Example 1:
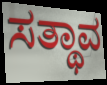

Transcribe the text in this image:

ಸತ್ಥಾವ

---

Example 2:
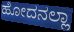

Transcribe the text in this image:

ಹೋದನಲ್ಲಾ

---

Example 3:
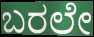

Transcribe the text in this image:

ಬರಲೇ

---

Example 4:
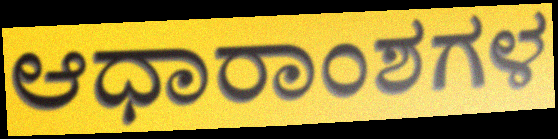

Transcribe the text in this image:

ಆಧಾರಾಂಶಗಳ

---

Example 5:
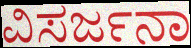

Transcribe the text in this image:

ವಿಸರ್ಜನಾ